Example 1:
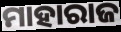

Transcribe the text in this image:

ମାହାରାଜ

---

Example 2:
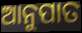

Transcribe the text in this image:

ଆନୁପାତ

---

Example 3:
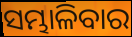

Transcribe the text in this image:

ସମ୍ଭାଳିବାର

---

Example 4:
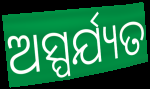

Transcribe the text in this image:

ଅସ୍ପର୍ଯ୍ୟତ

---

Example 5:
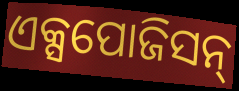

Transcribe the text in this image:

ଏକ୍ସପୋଜିସନ୍